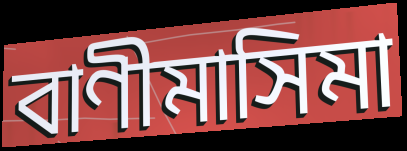
বাণীমাসিমা